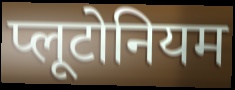
प्लूटोनियम